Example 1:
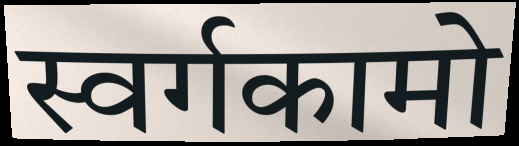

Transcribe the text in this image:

स्वर्गकामो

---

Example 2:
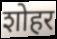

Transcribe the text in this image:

शोहर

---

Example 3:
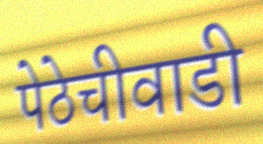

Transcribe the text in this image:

पेठेचीवाडी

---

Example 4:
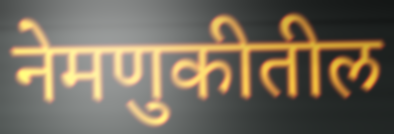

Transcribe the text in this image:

नेमणुकीतील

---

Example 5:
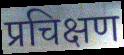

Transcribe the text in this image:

प्रचिक्षण